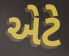
એટે